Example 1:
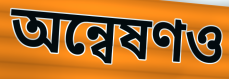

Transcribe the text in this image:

অন্বেষণও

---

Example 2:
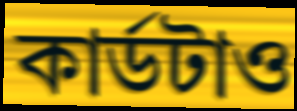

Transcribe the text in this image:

কার্ডটাও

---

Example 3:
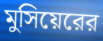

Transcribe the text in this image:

মুসিয়েরের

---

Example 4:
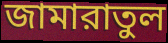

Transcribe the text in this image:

জামারাতুল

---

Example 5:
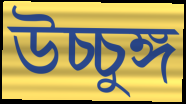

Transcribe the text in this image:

উচ্চুঙ্গ